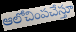
ఆలోచింపచేస్తూ